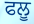
ਫਲੂ